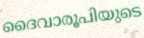
ദൈവാരൂപിയുടെ